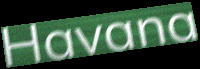
Havana